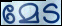
മേട